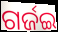
ଗର୍ଜଇ